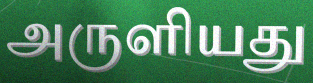
அருளியது